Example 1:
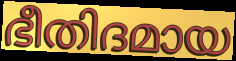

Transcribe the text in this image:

ഭീതിദമായ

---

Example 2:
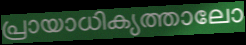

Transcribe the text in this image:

പ്രായാധിക്യത്താലോ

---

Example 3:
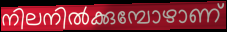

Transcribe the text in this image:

നിലനിൽക്കുമ്പോഴാണ്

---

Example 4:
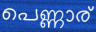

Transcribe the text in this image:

പെണ്ണാര്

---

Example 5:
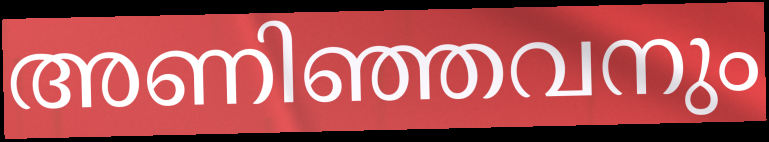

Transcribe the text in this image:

അണിഞ്ഞവനും